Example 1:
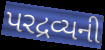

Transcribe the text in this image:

પરદ્રવ્યની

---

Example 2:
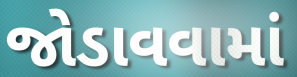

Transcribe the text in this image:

જોડાવવામાં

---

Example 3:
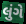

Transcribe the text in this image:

લુંગે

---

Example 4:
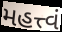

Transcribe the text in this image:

મહત્ત્વં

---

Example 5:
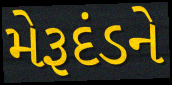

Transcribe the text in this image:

મેરૂદંડને